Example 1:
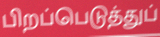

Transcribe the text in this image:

பிறப்பெடுத்துப்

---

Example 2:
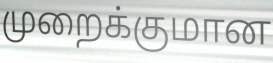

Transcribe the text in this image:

முறைக்குமான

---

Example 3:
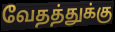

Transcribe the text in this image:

வேதத்துக்கு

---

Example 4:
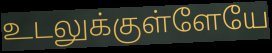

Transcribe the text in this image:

உடலுக்குள்ளேயே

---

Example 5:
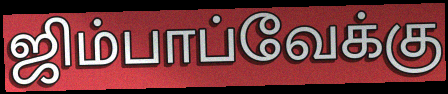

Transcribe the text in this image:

ஜிம்பாப்வேக்கு